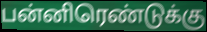
பன்னிரெண்டுக்கு